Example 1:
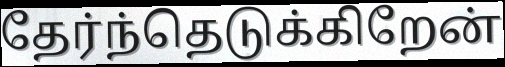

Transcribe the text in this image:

தேர்ந்தெடுக்கிறேன்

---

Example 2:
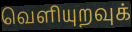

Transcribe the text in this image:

வெளியுறவுக்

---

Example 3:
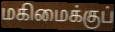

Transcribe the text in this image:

மகிமைக்குப்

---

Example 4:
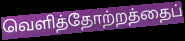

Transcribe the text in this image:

வெளித்தோற்றத்தைப்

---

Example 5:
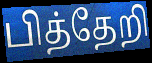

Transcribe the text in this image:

பித்தேறி